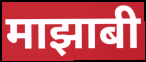
माझाबी